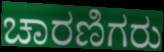
ಚಾರಣಿಗರು